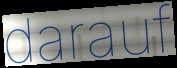
darauf